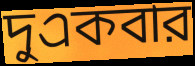
দুএকবার